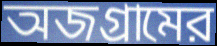
অজগ্রামের